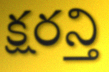
క్షరన్తి